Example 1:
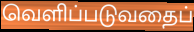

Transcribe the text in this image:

வெளிப்படுவதைப்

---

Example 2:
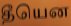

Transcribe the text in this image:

தீயென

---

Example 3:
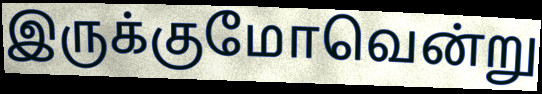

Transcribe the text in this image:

இருக்குமோவென்று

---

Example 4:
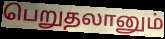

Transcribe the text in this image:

பெறுதலானும்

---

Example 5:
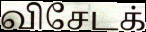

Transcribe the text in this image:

விசேடக்